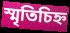
স্মৃতিচিহ্ন